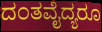
ದಂತವೈದ್ಯರೂ